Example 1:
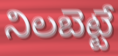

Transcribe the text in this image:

నిలబెట్టే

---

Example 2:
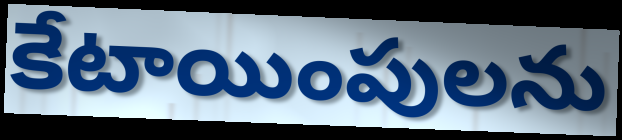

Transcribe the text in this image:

కేటాయింపులను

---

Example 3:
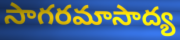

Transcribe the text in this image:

సాగరమాసాద్య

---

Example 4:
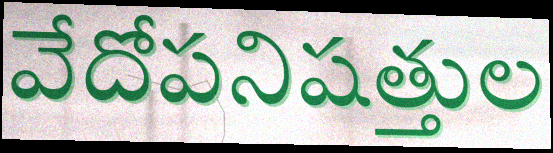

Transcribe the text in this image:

వేదోపనిషత్తుల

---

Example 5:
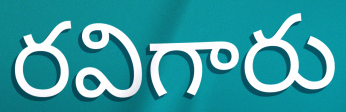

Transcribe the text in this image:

రవిగారు